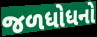
જળધોધનો